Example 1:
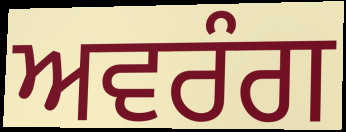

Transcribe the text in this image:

ਅਵਰੰਗ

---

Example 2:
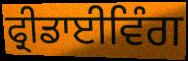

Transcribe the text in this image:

ਫ੍ਰੀਡਾਈਵਿੰਗ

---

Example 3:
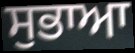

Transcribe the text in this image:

ਸੁਭਾਆ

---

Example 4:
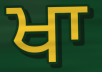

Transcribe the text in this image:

ਖਾ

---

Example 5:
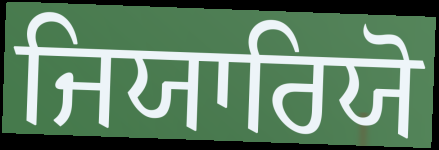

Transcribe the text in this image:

ਜਿਯਾਰਿਯੋ